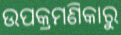
ଉପକ୍ରମଣିକାରୁ